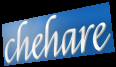
chehare